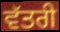
ਵੱਤਰੀ